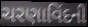
ચરણાવિંદની